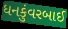
ધનકુંવરબાઈ